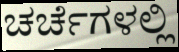
ಚರ್ಚೆಗಳಲ್ಲಿ